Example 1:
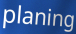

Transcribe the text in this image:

planing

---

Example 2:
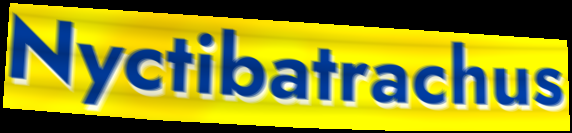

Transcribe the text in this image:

Nyctibatrachus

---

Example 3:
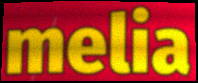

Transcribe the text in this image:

melia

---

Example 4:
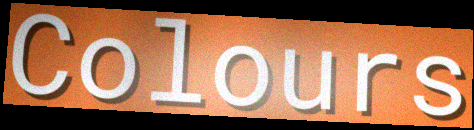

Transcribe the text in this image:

Colours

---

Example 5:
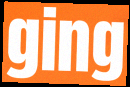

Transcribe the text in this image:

ging